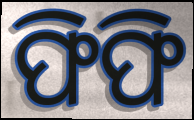
ଫିଫି